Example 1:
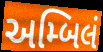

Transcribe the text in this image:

અમ્બિલં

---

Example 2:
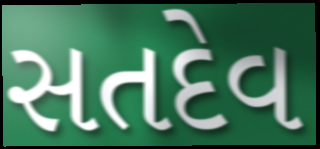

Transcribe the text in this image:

સતદેવ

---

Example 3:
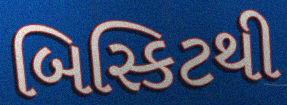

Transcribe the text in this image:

બિસ્કિટથી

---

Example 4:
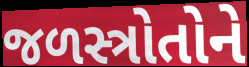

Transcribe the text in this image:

જળસ્ત્રોતોને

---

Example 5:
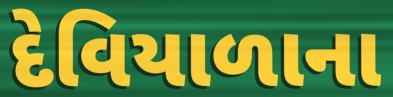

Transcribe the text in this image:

દેવિયાળાના